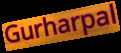
Gurharpal